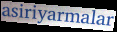
asiriyarmalar